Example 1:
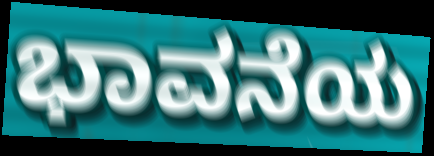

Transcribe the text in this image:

ಭಾವನೆಯ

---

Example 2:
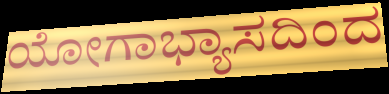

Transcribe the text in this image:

ಯೋಗಾಭ್ಯಾಸದಿಂದ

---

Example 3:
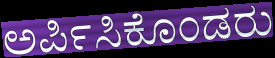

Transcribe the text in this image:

ಅರ್ಪಿಸಿಕೊಂಡರು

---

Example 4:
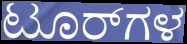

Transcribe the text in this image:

ಟೂರ್‌ಗಳ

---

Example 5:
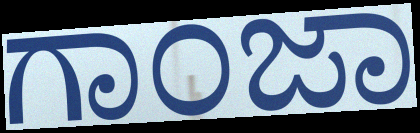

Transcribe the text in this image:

ಗಾಂಜಾ